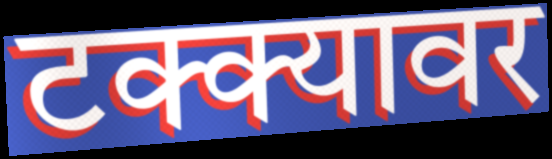
टक्क्यावर